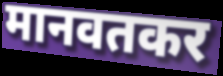
मानवतकर